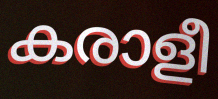
കരാളീ